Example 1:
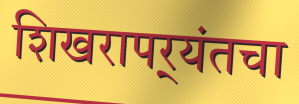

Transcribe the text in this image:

शिखरापर्यंतचा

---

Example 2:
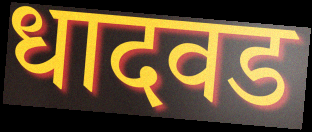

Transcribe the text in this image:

धादवड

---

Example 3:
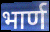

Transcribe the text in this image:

भार्ण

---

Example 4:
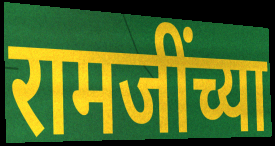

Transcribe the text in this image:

रामजींच्या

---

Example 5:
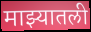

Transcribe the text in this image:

माझ्यातली